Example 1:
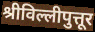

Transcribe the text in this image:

श्रीविल्लीपुत्तूर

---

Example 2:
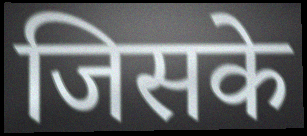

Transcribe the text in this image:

जिसके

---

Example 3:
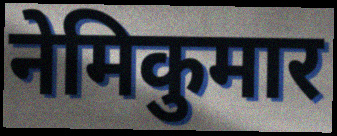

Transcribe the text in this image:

नेमिकुमार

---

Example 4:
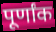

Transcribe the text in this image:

पूर्णांक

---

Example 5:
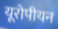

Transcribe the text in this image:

यूरोपीयन